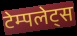
टेम्पलेट्स